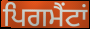
ਪਿਗਮੈਂਟਾਂ